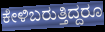
ಕೇಳಿಬರುತ್ತಿದ್ದರೂ